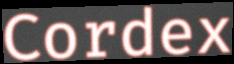
Cordex